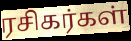
ரசிகர்கள்